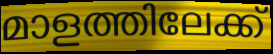
മാളത്തിലേക്ക്